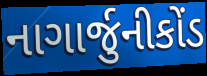
નાગાર્જુનીકોંડ